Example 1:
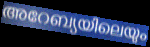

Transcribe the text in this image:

അറേബ്യയിലെയും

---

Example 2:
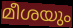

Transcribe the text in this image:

മീശയും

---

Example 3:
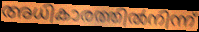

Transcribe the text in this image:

അധികാരത്തിൽനിന്ന്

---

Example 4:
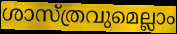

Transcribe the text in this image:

ശാസ്ത്രവുമെല്ലാം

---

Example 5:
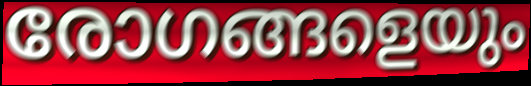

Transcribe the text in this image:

രോഗങ്ങളെയും